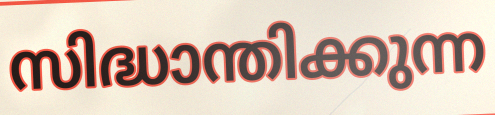
സിദ്ധാന്തിക്കുന്ന